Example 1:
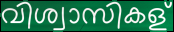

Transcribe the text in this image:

വിശ്വാസികള്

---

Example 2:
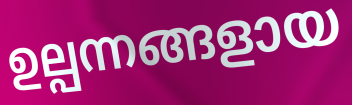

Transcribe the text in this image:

ഉല്പന്നങ്ങളായ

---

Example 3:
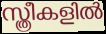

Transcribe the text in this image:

സ്ത്രീകളിൽ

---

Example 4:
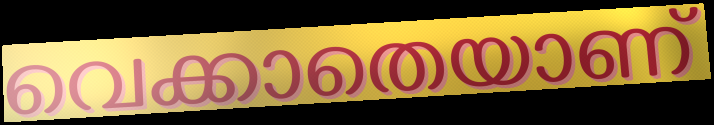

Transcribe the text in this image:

വെക്കാതെയാണ്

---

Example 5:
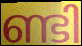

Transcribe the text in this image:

ണ്ടി